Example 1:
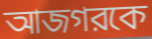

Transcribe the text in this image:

আজগরকে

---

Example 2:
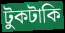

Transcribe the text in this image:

টুকটাকি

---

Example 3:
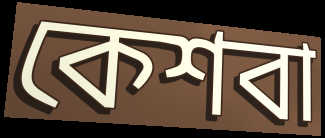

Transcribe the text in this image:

কেশবা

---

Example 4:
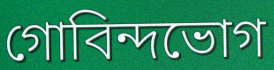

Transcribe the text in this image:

গোবিন্দভোগ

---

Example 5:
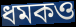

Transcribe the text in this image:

ধমকও